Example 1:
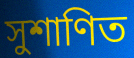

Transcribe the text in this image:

সুশাণিত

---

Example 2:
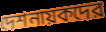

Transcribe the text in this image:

দেশনায়কদের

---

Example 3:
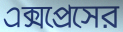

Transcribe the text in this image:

এক্সপ্রেসের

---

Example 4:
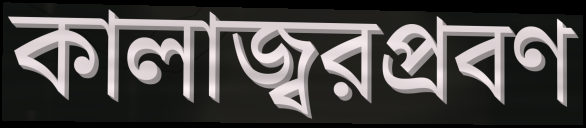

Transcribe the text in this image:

কালাজ্বরপ্রবণ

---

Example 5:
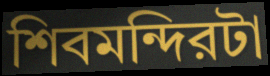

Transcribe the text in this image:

শিবমন্দিরটা